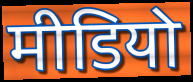
मीडियो